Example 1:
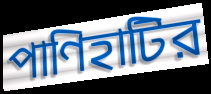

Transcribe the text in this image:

পাণিহাটির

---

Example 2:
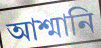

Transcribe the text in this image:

আশ্মানি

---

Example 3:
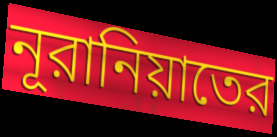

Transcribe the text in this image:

নূরানিয়াতের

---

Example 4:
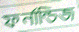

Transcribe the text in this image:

ফর্নান্ডিজ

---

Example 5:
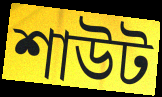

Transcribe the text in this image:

শাউট